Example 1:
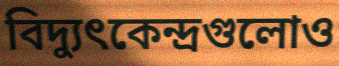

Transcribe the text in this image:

বিদ্যুৎকেন্দ্রগুলোও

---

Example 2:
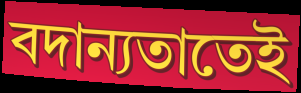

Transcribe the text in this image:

বদান্যতাতেই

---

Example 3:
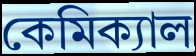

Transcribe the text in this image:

কেমিক্যাল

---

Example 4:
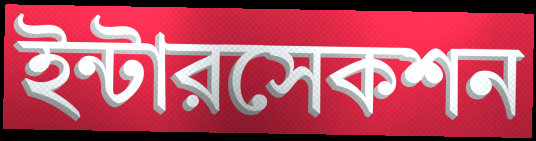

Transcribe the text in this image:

ইন্টারসেকশন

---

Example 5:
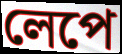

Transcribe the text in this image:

লেপে